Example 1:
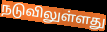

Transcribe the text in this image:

நடுவிலுள்ளது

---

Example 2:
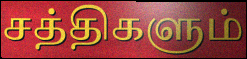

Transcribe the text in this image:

சத்திகளும்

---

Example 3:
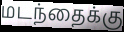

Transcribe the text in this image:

மடந்தைக்கு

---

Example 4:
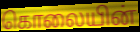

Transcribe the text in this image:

கொலையின்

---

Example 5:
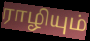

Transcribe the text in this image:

ராழியும்